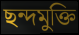
ছন্দমুক্তি